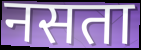
नसता